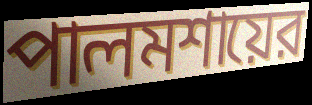
পালমশায়ের